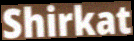
Shirkat